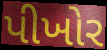
પીખોર